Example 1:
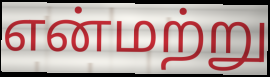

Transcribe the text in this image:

என்மற்று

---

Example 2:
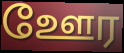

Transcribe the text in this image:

ஊேர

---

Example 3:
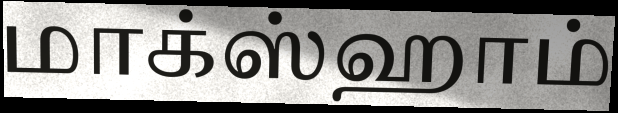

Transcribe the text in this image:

மாக்ஸ்ஹாம்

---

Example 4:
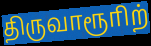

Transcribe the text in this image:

திருவாரூரிற்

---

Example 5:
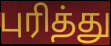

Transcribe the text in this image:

புரித்து